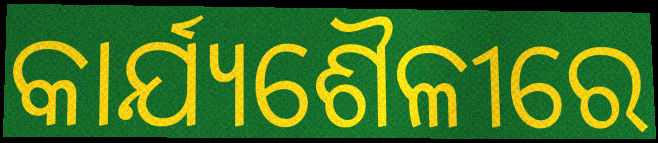
କାର୍ଯ୍ୟଶୈଳୀରେ